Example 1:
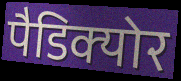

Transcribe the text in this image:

पैडिक्योर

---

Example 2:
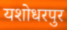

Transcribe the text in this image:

यशोधरपुर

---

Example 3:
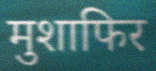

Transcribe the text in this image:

मुशाफिर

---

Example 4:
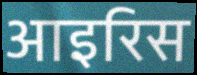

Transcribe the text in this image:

आइरिस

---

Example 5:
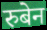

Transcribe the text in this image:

रुबेन